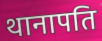
थानापति